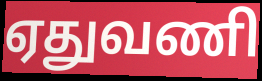
ஏதுவணி